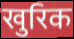
खुरिक